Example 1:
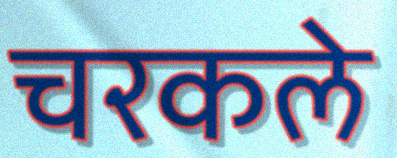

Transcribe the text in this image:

चरकले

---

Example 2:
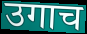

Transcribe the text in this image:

उगाच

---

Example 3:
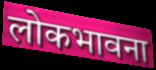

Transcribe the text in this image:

लोकभावना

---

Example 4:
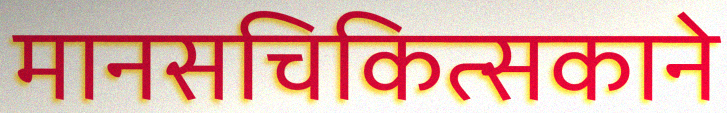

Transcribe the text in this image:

मानसचिकित्सकाने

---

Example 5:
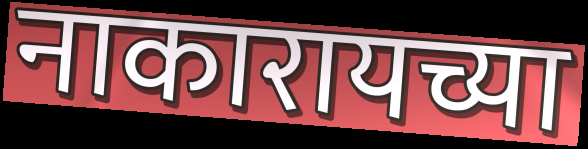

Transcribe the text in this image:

नाकारायच्या